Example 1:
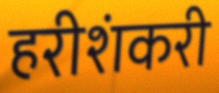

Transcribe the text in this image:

हरीशंकरी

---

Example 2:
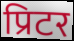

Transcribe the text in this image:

प्रिटर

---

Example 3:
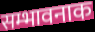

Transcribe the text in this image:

सम्भावनाक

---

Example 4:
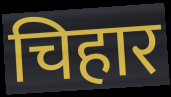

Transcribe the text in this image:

चिहार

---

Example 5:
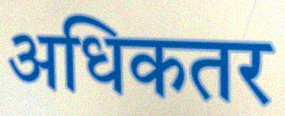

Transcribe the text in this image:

अधिकतर